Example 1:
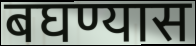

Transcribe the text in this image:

बघण्यास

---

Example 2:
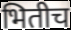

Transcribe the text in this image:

भितीच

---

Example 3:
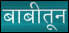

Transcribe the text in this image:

बाबीतून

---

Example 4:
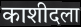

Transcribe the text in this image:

काशीदला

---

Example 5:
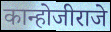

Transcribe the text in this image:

कान्होजीराजे